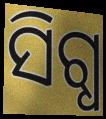
ସିଗ୍ଧ